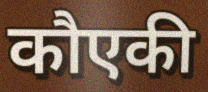
कौएकी